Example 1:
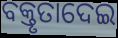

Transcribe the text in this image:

ବକ୍ତୃତାଦେଇ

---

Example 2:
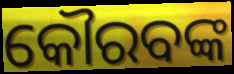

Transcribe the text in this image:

କୌରବଙ୍କ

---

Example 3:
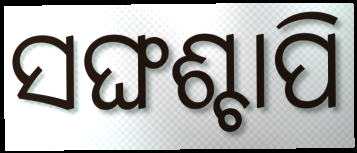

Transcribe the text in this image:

ସଙ୍ଘଶ୍ଚାପି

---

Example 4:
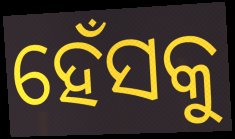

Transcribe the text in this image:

ହେଁସକୁ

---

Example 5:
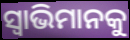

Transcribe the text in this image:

ସ୍ୱାଭିମାନକୁ